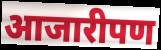
आजारीपण